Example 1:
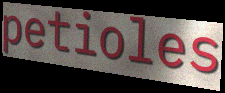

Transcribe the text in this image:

petioles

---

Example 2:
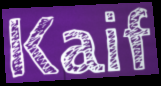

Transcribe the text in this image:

Kaif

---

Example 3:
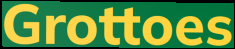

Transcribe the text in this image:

Grottoes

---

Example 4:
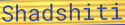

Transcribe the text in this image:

Shadshiti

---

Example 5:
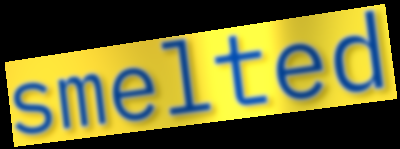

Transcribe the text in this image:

smelted